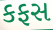
કફસ